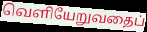
வெளியேறுவதைப்